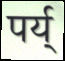
पर्य्